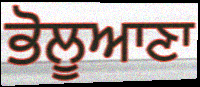
ਭੋਲੂਆਣਾ